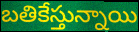
బతికేస్తున్నాయి